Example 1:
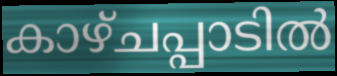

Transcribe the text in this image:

കാഴ്ചപ്പാടിൽ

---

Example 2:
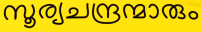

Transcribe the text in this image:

സൂര്യചന്ദ്രന്മാരും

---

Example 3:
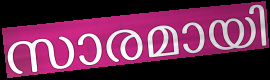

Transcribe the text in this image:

സാരമായി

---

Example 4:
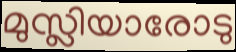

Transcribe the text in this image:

മുസ്ലിയാരോടു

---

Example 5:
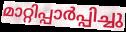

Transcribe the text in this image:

മാറ്റിപ്പാർപ്പിച്ചു